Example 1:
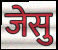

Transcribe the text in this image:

जेसु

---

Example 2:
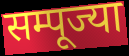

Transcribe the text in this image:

सम्पूज्या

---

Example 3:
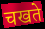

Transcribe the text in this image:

चखते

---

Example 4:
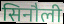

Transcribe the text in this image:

सिनौली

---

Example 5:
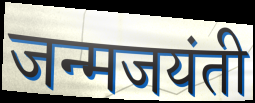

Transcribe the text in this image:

जन्मजयंती